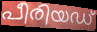
പീരിയഡ്